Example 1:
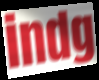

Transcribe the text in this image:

indg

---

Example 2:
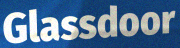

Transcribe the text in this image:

Glassdoor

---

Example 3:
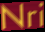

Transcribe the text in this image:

Nri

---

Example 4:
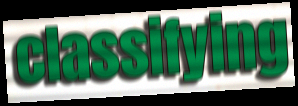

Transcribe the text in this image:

classifying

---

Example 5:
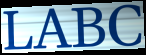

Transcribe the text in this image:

LABC